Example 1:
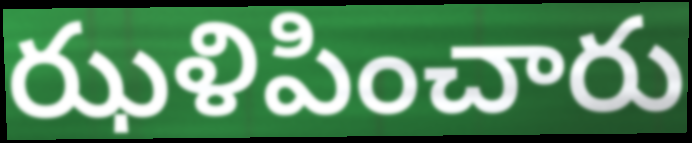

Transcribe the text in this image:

ఝళిపించారు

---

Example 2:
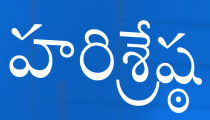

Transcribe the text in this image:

హరిశ్రేష్ఠ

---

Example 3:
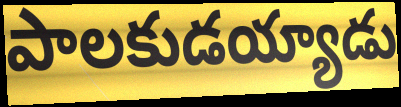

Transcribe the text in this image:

పాలకుడయ్యాడు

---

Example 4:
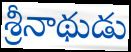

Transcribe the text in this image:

శ్రీనాథుడు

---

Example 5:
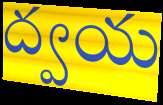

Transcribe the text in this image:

ద్వయ